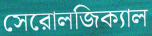
সেরোলজিক্যাল